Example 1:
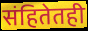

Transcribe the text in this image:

संहितेतही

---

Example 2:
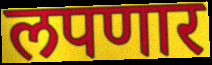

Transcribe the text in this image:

लपणार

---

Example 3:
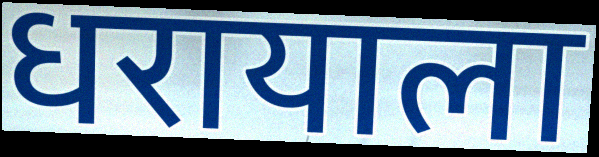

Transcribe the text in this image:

धरायाला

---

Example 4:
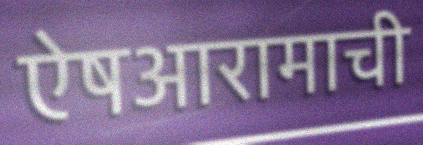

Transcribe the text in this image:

ऐषआरामाची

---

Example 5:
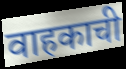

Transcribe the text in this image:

वाहकाची